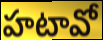
హటావో